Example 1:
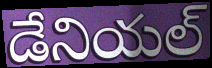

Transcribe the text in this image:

డేనియల్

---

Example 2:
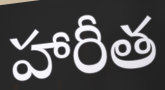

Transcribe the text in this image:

హారీత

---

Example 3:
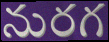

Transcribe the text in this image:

నురగ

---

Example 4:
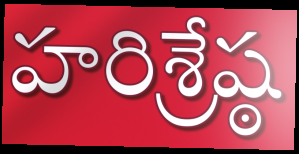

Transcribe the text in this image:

హరిశ్రేష్ఠ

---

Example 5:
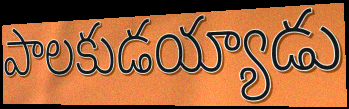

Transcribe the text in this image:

పాలకుడయ్యాడు